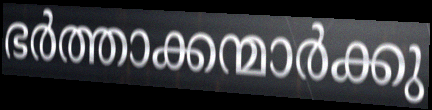
ഭർത്താക്കന്മാർക്കു